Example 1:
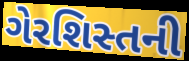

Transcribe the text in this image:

ગેરશિસ્તની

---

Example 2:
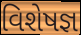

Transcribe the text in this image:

વિશેષજ્ઞ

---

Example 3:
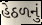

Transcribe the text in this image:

હેઠળનું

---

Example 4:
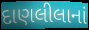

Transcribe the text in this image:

દાણલીલાનાં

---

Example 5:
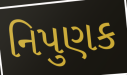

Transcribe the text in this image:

નિપુણક